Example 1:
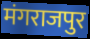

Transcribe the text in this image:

मंगराजपुर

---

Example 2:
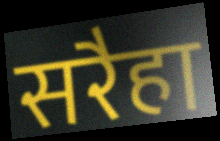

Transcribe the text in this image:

सरैहा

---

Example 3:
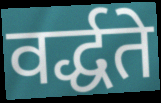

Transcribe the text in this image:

वर्द्धते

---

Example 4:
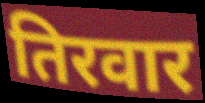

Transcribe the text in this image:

तिरवार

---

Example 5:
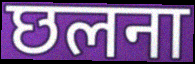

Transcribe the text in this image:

छलना